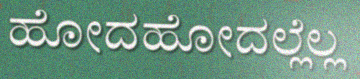
ಹೋದಹೋದಲ್ಲೆಲ್ಲ